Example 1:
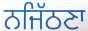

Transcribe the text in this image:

ਨਜਿੱਠਣਾ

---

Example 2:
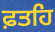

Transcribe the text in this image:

ਫ਼ਤਹਿ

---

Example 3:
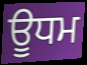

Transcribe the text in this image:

ਊਧਮ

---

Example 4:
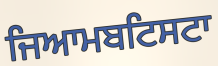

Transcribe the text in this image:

ਜਿਆਮਬਟਿਸਟਾ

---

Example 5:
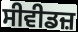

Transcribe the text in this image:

ਸੀਵੀਡਜ਼